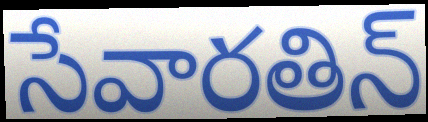
సేవారతిన్